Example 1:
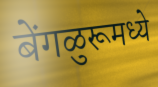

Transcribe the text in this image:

बेंगळुरूमध्ये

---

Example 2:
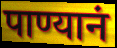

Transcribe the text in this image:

पाण्यानं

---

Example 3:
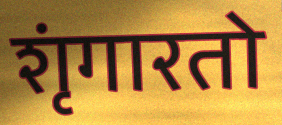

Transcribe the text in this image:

शृंगारतो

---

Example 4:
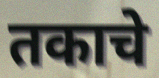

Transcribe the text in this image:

तकाचे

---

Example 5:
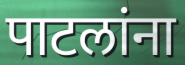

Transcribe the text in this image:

पाटलांना